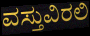
ವಸ್ತುವಿರಲಿ